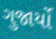
ગુજાર્યો